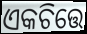
ଏକଚିତ୍ତେ